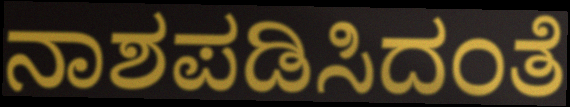
ನಾಶಪಡಿಸಿದಂತೆ